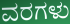
ವರಗಳು